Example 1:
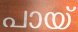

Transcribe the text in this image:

പായ്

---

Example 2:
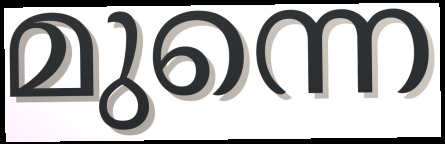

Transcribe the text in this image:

മുന്നെ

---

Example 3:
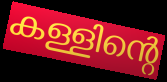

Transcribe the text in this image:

കള്ളിന്റെ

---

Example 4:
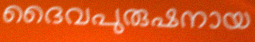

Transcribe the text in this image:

ദൈവപുരുഷനായ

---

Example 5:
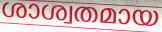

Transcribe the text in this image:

ശാശ്വതമായ